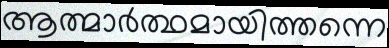
ആത്മാർത്ഥമായിത്തന്നെ